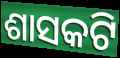
ଶାସକଟି